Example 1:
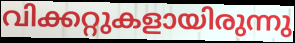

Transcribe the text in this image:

വിക്കറ്റുകളായിരുന്നു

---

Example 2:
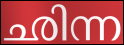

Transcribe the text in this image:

ഛിന്ന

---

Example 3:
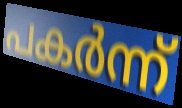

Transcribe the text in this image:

പകർന്ന്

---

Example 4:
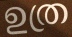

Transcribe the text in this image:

ഉത്ര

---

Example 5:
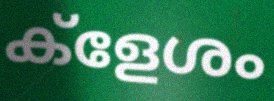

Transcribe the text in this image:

ക്ളേശം